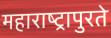
महाराष्ट्रापुरते